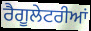
ਰੈਗੂਲੇਟਰੀਆਂ